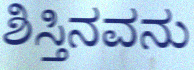
ಶಿಸ್ತಿನವನು